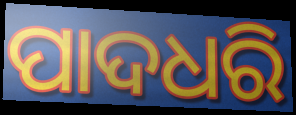
ପାଦଧରି